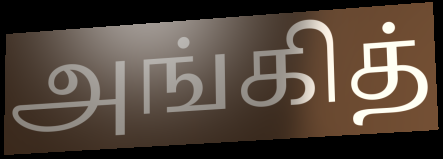
அங்கித்